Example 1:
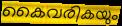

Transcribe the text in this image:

കൈവരികയും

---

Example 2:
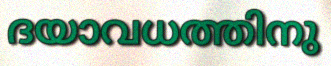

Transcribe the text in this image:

ദയാവധത്തിനു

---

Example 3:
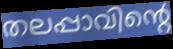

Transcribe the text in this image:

തലപ്പാവിന്റെ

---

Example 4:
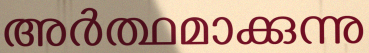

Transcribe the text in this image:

അർത്ഥമാക്കുന്നു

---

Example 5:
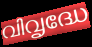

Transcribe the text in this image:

വിവൃദ്ധേ